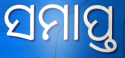
ସମାପ୍ତ